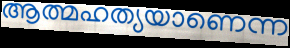
ആത്മഹത്യയാണെന്ന